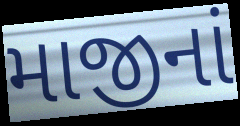
માજીનાં